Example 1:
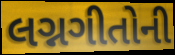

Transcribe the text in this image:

લગ્નગીતોની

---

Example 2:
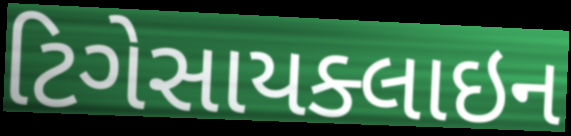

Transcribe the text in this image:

ટિગેસાયક્લાઇન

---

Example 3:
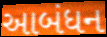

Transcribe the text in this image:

આબંધન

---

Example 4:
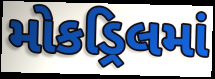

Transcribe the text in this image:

મોકડ્રિલમાં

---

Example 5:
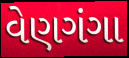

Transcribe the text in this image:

વેણગંગા